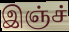
இஞ்ச்